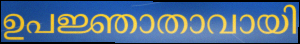
ഉപജ്ഞാതാവായി